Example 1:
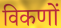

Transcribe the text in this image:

विकणों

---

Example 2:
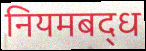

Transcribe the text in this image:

नियमबद्ध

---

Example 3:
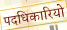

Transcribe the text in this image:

पदधिकारियो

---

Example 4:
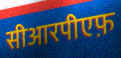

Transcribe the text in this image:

सीआरपीएफ़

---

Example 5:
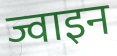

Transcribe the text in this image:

ज्‍वाइन